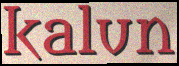
kalun